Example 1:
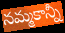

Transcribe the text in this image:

నమ్మకాన్నీ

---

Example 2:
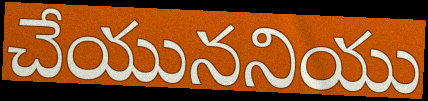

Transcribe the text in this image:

చేయుననియు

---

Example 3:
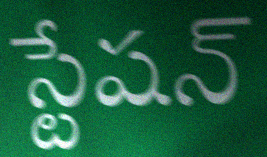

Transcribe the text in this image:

స్టేషన్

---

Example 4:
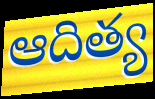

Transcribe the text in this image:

ఆదిత్య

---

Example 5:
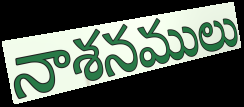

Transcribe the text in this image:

నాశనములు